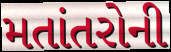
મતાંતરોની